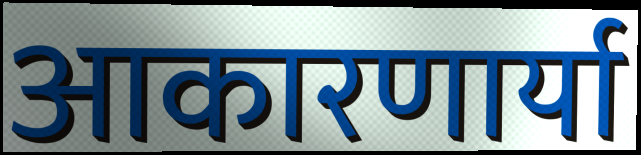
आकारणार्या